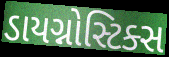
ડાયગ્નોસ્ટિક્સ